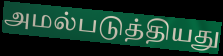
அமல்படுத்தியது